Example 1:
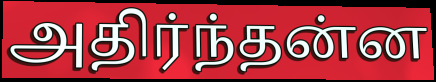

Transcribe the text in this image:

அதிர்ந்தன்ன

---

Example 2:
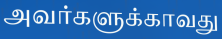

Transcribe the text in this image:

அவர்களுக்காவது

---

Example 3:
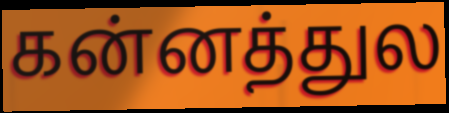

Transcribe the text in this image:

கன்னத்துல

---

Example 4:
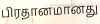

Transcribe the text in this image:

பிரதானமானது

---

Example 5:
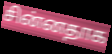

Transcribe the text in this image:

சின்னதாக